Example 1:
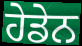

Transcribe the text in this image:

ਹੇਡੇਨ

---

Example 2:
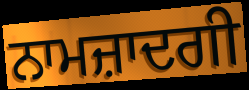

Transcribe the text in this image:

ਨਾਮਜ਼ਾਦਗੀ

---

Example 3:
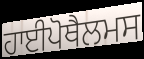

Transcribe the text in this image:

ਹਾਈਪੋਥੈਲਮਸ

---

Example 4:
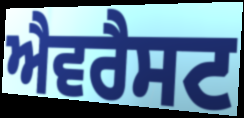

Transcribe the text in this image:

ਐਵਰੈਸਟ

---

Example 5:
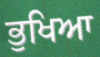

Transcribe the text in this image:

ਭੁਖਿਆ